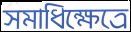
সমাধিক্ষেত্রে